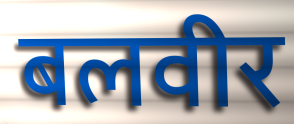
बलवीर